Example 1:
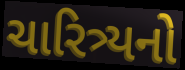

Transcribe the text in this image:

ચારિત્ર્યનો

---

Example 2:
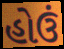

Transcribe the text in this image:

હોઉં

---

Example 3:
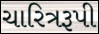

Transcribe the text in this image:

ચારિત્રરૂપી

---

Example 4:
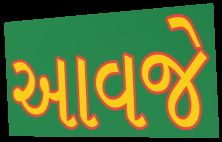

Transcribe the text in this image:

આવજે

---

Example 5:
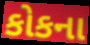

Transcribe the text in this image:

કોકના